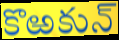
కొఱకున్